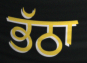
ਭੱਠਾ